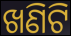
ଖଣିଟି